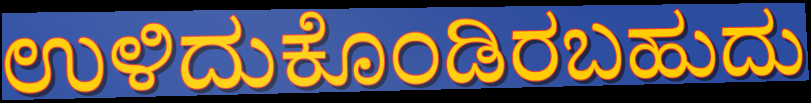
ಉಳಿದುಕೊಂಡಿರಬಹುದು